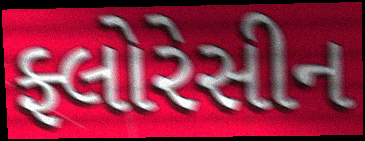
ફ્લોરેસીન